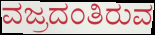
ವಜ್ರದಂತಿರುವ